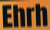
Ehrh